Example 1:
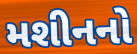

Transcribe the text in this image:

મશીનનો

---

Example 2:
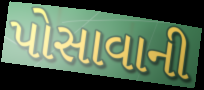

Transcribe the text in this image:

પોસાવાની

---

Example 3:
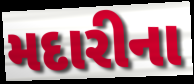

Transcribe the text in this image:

મદારીના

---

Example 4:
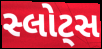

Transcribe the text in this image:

સ્લોટ્સ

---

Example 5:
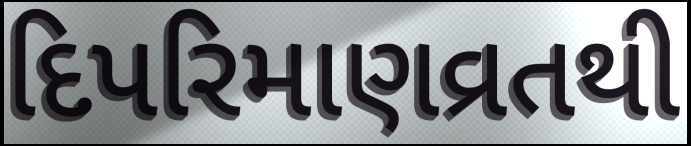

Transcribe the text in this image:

દિપરિમાણવ્રતથી